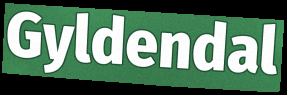
Gyldendal